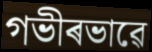
গভীৰভাৱে